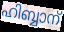
ഹിബ്ബാന്